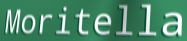
Moritella